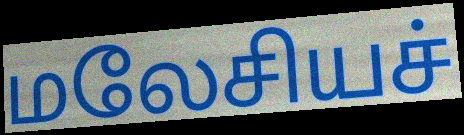
மலேசியச்